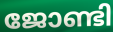
ജോണ്ടി